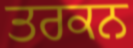
ਤਰਕਨ